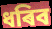
ধৰিব